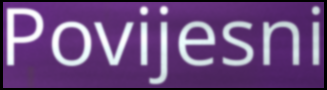
Povijesni